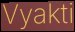
Vyakti